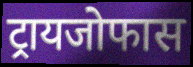
ट्रायजोफास